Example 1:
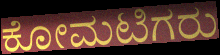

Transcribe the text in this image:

ಕೋಮಟಿಗರು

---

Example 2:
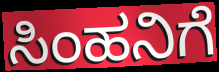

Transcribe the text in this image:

ಸಿಂಹನಿಗೆ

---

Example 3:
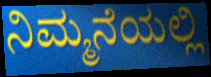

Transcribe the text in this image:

ನಿಮ್ಮನೆಯಲ್ಲಿ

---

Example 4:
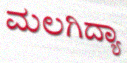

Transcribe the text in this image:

ಮಲಗಿದ್ಯಾ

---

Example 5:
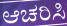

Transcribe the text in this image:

ಆಚರಿಸಿ